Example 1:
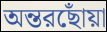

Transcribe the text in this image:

অন্তরছোঁয়া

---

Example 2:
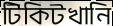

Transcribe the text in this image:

টিকিটখানি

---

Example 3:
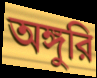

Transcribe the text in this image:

অঙ্গুরি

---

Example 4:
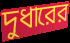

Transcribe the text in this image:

দুধারের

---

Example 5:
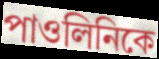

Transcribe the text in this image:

পাওলিনিকে